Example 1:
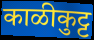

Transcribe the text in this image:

काळीकुट्ट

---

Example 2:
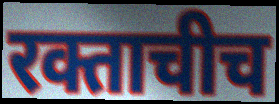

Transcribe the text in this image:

रक्ताचीच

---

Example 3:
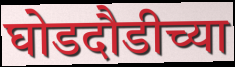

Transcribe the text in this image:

घोडदौडीच्या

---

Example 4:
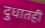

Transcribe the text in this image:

दुधातही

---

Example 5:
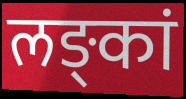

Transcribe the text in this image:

लङ्कां